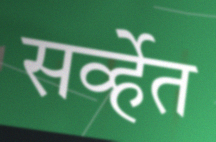
सर्व्हेत